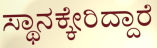
ಸ್ಥಾನಕ್ಕೇರಿದ್ದಾರೆ